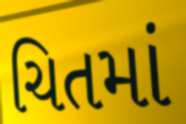
ચિતમાં